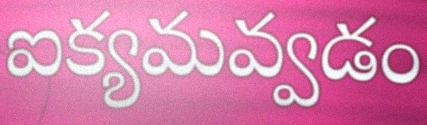
ఐక్యమవ్వడం